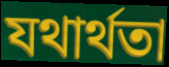
যথার্থতা